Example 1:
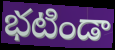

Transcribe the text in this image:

భటిండా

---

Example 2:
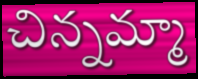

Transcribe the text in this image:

చిన్నమ్మా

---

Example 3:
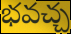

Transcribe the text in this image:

భవచ్చ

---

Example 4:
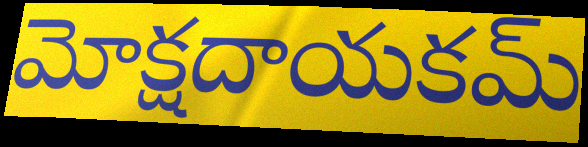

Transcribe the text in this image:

మోక్షదాయకమ్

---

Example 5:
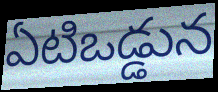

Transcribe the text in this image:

ఏటిఒడ్డున